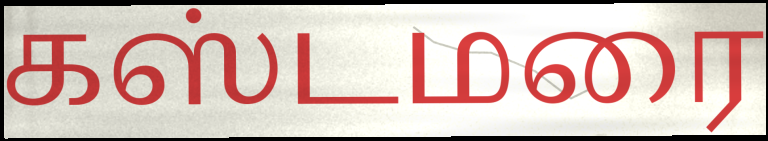
கஸ்டமரை